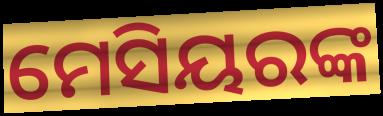
ମେସିୟରଙ୍କ